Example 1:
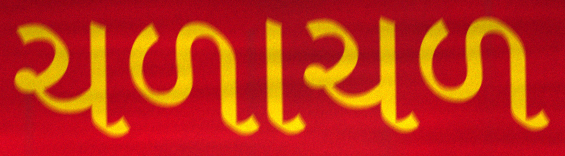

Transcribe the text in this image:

ચળાચળ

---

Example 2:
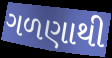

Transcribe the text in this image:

ગળણાથી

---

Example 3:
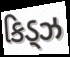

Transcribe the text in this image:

કિડ્ઝ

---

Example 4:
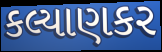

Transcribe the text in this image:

કલ્યાણકર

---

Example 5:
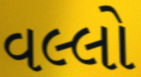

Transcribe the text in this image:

વલ્લો